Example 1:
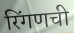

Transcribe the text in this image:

रिंगणची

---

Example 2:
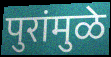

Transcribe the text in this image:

पुरांमुळे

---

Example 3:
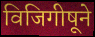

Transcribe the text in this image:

विजिगीषूने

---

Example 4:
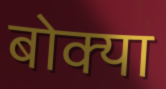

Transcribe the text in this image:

बोक्या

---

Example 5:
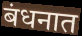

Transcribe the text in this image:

बंधनात